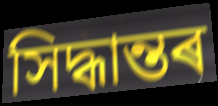
সিদ্ধান্তৰ